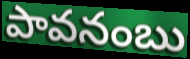
పావనంబు